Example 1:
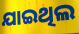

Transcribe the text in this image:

ଯାଇଥିଲ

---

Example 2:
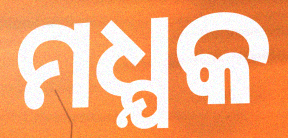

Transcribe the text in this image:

ମଧ୍ଯକ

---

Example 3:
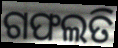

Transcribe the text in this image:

ଗଫଲତି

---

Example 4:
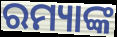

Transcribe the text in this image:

ରମ୍ୟାଙ୍କ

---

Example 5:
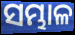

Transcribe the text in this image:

ସମ୍ଭାଳ